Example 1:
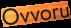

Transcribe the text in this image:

Ovvoru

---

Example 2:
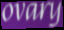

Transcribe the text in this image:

ovary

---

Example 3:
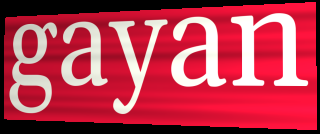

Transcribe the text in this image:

gayan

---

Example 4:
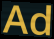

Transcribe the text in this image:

Ad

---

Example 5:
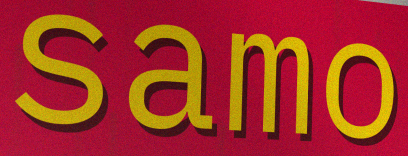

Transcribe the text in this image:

samo